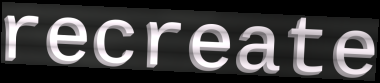
recreate